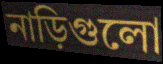
নাড়িগুলো